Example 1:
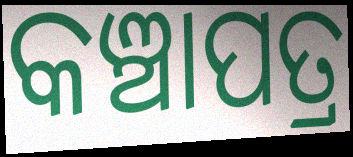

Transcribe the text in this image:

କଞ୍ଚାପତ୍ର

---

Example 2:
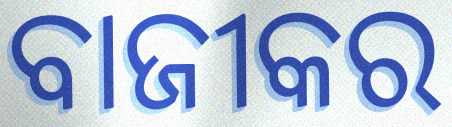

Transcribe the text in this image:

ବାଜୀକର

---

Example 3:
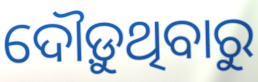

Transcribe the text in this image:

ଦୌଡ଼ୁଥିବାରୁ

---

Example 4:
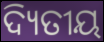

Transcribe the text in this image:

ଦ୍ଯିତୀୟ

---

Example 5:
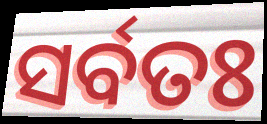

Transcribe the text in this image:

ସର୍ବତଃ